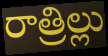
రాత్రిల్లు